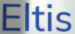
Eltis